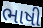
ભાષી